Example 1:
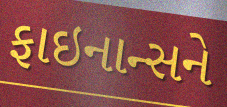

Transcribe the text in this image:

ફાઇનાન્સને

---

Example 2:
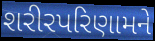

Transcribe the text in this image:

શરીરપરિણામને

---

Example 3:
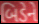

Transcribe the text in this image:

બિડેને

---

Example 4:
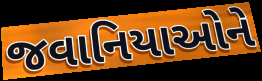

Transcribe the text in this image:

જવાનિયાઓને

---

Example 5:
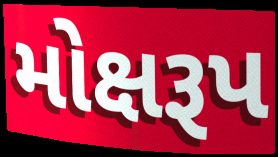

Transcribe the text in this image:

મોક્ષરૂપ